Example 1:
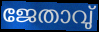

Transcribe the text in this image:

ജേതാവു്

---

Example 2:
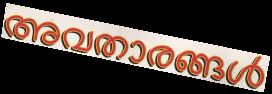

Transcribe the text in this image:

അവതാരങ്ങൾ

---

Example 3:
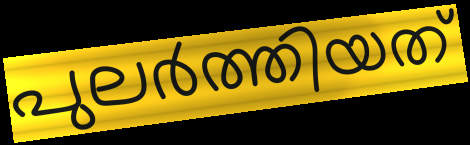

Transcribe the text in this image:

പുലർത്തിയത്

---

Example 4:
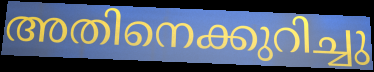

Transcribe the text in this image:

അതിനെക്കുറിച്ചു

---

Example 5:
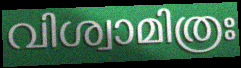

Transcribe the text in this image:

വിശ്വാമിത്രഃ